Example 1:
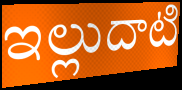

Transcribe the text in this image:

ఇల్లుదాటి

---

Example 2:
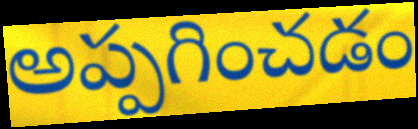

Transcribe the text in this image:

అప్పగించడం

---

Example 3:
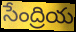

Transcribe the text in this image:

సేంద్రియ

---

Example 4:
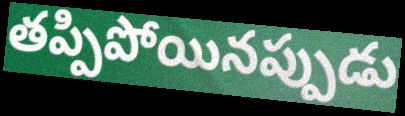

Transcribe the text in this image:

తప్పిపోయినప్పుడు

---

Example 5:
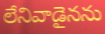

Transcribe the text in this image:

లేనివాడైనను